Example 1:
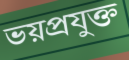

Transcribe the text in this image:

ভয়প্রযুক্ত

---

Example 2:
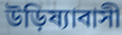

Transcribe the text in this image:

উড়িষ্যাবাসী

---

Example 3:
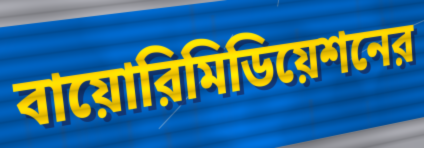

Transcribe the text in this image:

বায়োরিমিডিয়েশনের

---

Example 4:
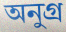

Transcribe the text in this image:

অনুগ্র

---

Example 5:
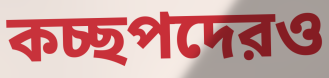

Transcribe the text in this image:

কচ্ছপদেরও